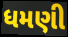
ધમણી